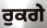
ਰੁਕਗੇ